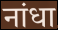
नांधा